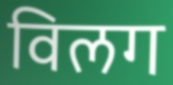
विलग